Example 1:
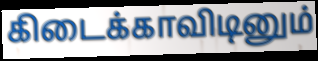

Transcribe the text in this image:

கிடைக்காவிடினும்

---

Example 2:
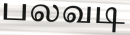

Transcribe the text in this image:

பலவடி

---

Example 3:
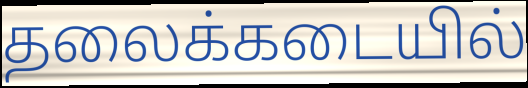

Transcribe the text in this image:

தலைக்கடையில்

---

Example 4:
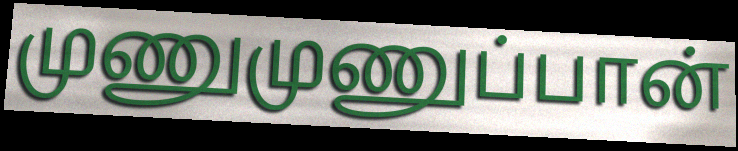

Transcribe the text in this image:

முணுமுணுப்பான்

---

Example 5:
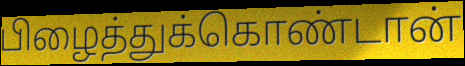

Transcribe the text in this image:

பிழைத்துக்கொண்டான்